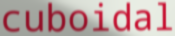
cuboidal